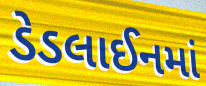
ડેડલાઈનમાં